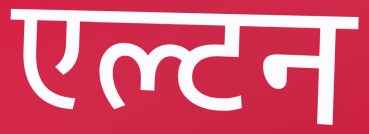
एल्टन